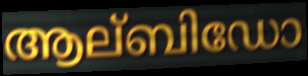
ആല്ബിഡോ